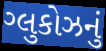
ગ્લુકોઝનું